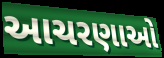
આચરણાઓ